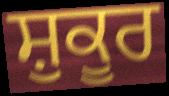
ਸ਼ੁਕੂਰ